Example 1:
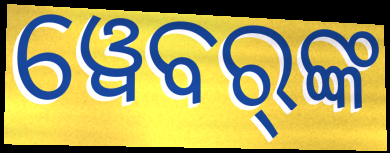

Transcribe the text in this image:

ୱେବର୍‌ଙ୍କ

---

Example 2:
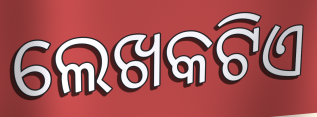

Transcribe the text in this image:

ଲେଖକଟିଏ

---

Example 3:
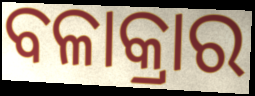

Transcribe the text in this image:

ବଳାକ୍ରାର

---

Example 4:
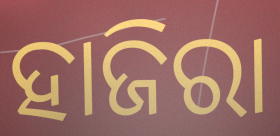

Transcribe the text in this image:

ହାଜିରା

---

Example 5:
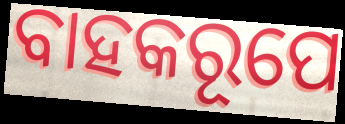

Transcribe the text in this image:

ବାହକରୂପେ